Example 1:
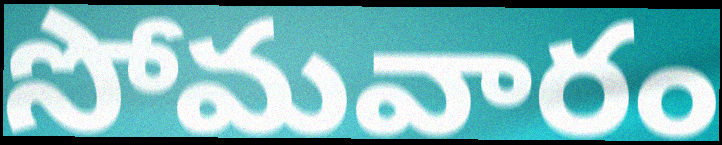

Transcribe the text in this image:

సోమవారం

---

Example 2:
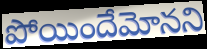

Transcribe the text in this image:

పోయిందేమోనని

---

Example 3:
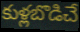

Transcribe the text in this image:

కుళ్లబొడిచే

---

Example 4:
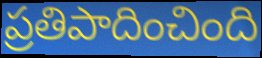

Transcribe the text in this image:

ప్రతిపాదించింది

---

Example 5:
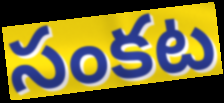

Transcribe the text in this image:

సంకట